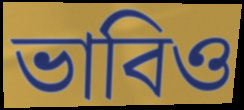
ভাবিও